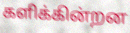
களிக்கின்றன